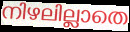
നിഴലില്ലാതെ